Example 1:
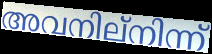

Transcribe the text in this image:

അവനില്നിന്ന്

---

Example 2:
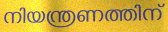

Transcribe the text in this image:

നിയന്ത്രണത്തിന്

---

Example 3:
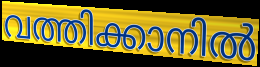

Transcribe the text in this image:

വത്തിക്കാനിൽ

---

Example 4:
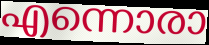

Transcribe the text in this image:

എന്നൊരാ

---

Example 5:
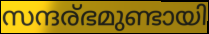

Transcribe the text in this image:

സന്ദര്ഭമുണ്ടായി